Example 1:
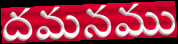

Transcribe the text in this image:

దమనము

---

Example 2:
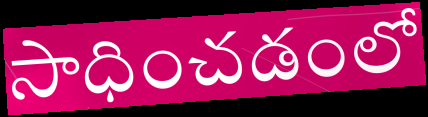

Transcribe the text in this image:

సాధించడంలో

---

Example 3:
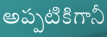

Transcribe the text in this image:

అప్పటికిగానీ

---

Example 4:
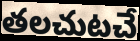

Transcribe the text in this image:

తలచుటచే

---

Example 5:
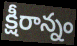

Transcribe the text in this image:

క్షీరాన్నం